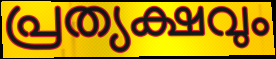
പ്രത്യക്ഷവും